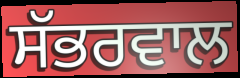
ਸੱਭਰਵਾਲ